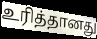
உரித்தானது